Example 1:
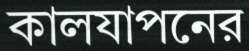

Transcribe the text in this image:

কালযাপনের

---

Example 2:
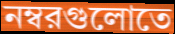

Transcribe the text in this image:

নম্বরগুলোতে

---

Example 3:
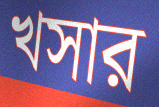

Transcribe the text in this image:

খসার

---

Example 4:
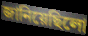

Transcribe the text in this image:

জানিয়েছিলো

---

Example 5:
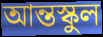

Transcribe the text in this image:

আন্তস্কুল